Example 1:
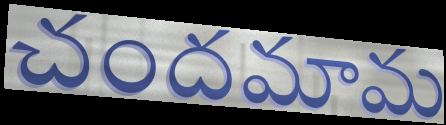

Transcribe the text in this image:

చందమామ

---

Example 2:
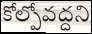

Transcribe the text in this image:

కోల్పోవద్దని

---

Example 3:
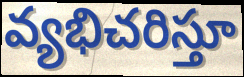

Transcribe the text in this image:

వ్యభిచరిస్తూ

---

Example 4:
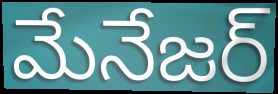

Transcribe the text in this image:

మేనేజర్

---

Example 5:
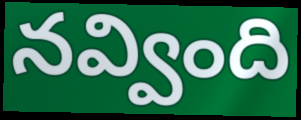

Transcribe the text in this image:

నవ్వింది